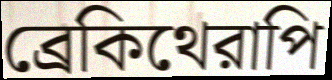
ব্রেকিথেরাপি